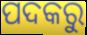
ପଦକରୁ